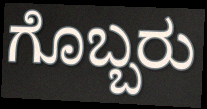
ಗೊಬ್ಬರು